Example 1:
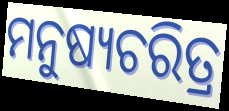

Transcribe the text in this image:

ମନୁଷ୍ୟଚରିତ୍ର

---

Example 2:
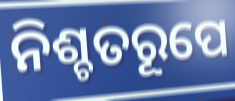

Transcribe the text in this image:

ନିଶ୍ଚତରୂପେ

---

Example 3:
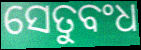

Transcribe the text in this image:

ସେତୁବଂଧ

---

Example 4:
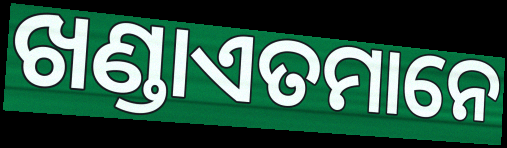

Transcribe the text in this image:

ଖଣ୍ଡାଏତମାନେ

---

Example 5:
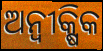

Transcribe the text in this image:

ଅନ୍ୱୀକ୍ଷିକ